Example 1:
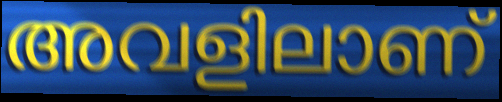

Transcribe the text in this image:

അവളിലാണ്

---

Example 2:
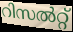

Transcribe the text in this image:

റിസൽറ്റ്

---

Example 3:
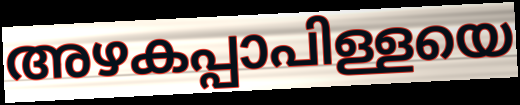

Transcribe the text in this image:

അഴകപ്പാപിള്ളയെ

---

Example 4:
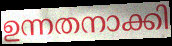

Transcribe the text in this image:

ഉന്നതനാക്കി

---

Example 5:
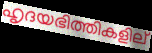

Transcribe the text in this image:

ഹൃദയഭിത്തികളില്